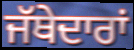
ਜੱਥੇਦਾਰਾਂ